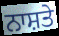
ਨਾਸ਼ਤੇ